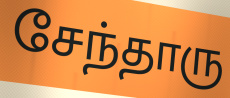
சேந்தாரு